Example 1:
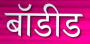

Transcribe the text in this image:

बॉडीड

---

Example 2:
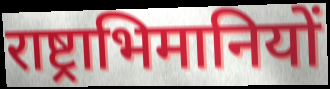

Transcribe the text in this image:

राष्ट्राभिमानियों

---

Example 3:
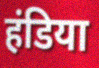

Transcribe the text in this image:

हंडिया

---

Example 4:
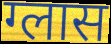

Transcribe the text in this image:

ग्लास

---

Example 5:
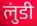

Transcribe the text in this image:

लुंडी